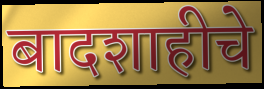
बादशाहीचे